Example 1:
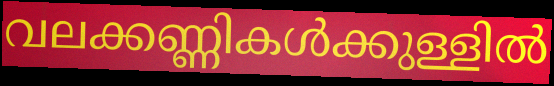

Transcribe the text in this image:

വലക്കണ്ണികൾക്കുള്ളിൽ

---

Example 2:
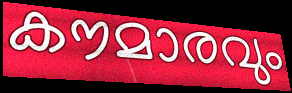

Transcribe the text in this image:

കൗമാരവും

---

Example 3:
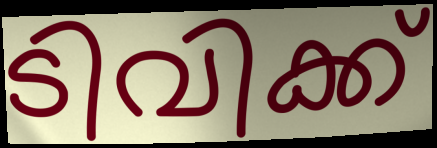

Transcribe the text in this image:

ടിവിക്ക്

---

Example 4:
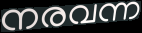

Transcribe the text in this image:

നരവന്ന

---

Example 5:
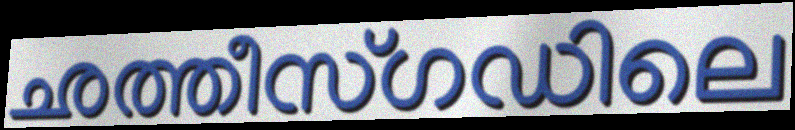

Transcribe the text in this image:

ഛത്തീസ്ഗഡിലെ